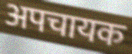
अपचायक